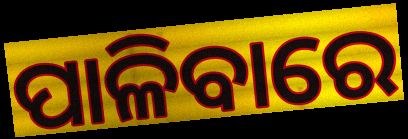
ପାଳିବାରେ